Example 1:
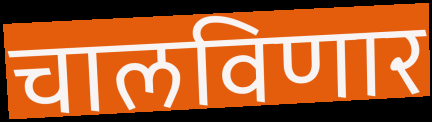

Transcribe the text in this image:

चालविणार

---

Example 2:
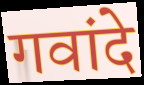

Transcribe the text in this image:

गवांदे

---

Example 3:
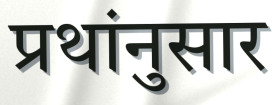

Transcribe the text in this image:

प्रथांनुसार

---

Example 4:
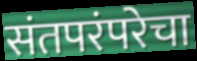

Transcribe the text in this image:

संतपरंपरेचा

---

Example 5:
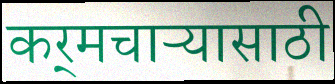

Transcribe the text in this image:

कर्मचाऱ्यासाठी